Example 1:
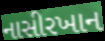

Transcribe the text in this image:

નાસીરખાન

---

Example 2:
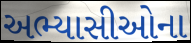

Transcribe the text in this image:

અભ્યાસીઓના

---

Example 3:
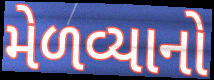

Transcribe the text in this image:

મેળવ્યાનો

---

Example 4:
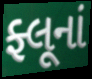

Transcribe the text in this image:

ફ્લૂનાં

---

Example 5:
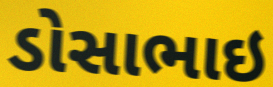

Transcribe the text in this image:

ડોસાભાઇ